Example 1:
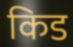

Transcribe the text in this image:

किड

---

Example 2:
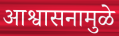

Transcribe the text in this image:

आश्वासनामुळे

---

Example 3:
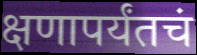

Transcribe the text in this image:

क्षणापर्यंतचं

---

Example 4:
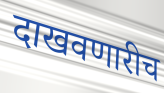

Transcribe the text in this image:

दाखवणारीच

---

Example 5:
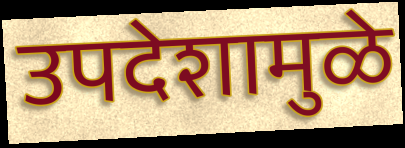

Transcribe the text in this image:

उपदेशामुळे